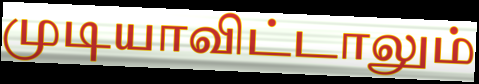
முடியாவிட்டாலும்